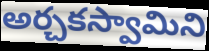
అర్చకస్వామిని